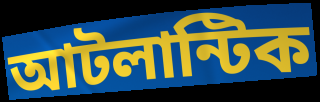
আটলান্টিক